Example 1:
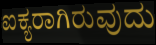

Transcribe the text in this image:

ಐಕ್ಯರಾಗಿರುವುದು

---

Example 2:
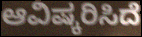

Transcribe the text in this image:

ಆವಿಷ್ಕರಿಸಿದೆ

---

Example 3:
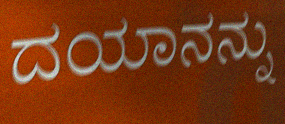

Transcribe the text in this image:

ದಯಾನನ್ನು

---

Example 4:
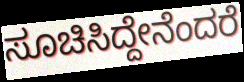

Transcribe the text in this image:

ಸೂಚಿಸಿದ್ದೇನೆಂದರೆ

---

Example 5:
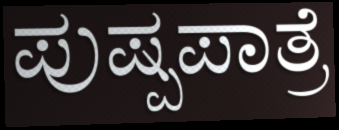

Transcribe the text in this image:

ಪುಷ್ಪಪಾತ್ರೆ